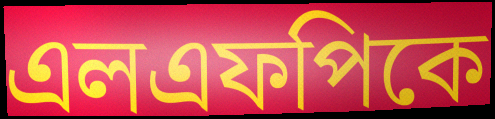
এলএফপিকে